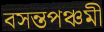
বসন্তপঞ্চমী